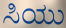
ಸಿಯು